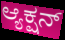
ಆ್ಯಕ್ಷನ್